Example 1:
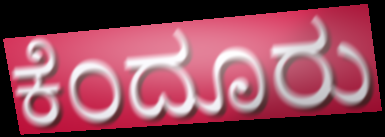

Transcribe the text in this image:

ಕೆಂದೂರು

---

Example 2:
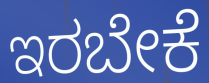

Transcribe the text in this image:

ಇರಬೇಕೆ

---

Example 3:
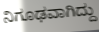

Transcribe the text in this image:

ನಿಗೂಢವಾಗಿದ್ದು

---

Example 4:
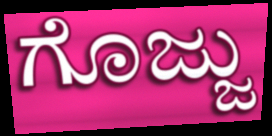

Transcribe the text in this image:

ಗೊಜ್ಜು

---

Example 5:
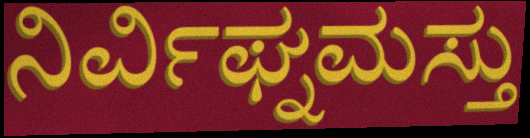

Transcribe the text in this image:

ನಿರ್ವಿಘ್ನಮಸ್ತು